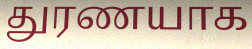
துரணயாக